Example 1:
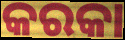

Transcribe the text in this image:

କରକା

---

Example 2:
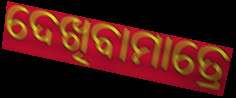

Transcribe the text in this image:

ଦେଖିବାମାତ୍ରେ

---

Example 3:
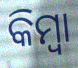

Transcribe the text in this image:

କିମ୍ବା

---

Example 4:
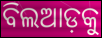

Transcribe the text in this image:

ବିଲଆଡ଼କୁ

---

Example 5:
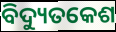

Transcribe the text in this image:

ବିଦ୍ୟୁତକେଶ